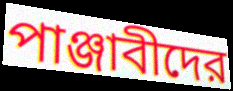
পাঞ্জাবীদের